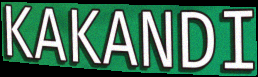
KAKANDI